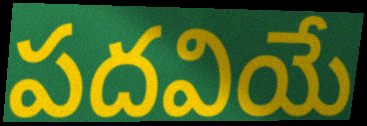
పదవియే